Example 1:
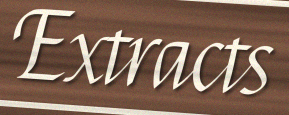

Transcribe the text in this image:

Extracts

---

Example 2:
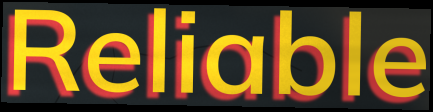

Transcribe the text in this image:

Reliable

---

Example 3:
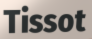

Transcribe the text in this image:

Tissot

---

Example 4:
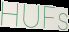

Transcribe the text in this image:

HUFs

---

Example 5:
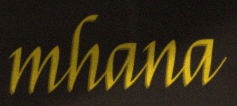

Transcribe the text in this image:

mhana